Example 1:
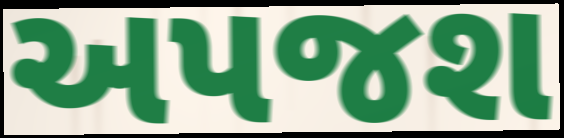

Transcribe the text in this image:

અપજશ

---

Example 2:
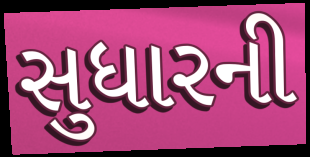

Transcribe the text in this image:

સુધારની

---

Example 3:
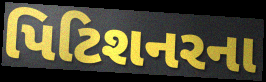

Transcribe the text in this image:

પિટિશનરના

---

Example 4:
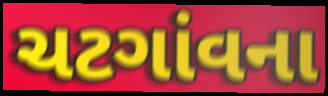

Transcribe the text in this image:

ચટગાંવના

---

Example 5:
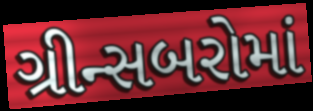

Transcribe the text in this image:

ગ્રીન્સબરોમાં